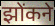
झोंकने